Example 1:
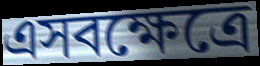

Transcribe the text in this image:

এসবক্ষেত্রে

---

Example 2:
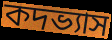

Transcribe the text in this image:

কদভ্যাস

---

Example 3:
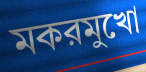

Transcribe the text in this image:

মকরমুখো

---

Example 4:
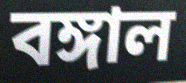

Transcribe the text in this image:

বঙ্গাল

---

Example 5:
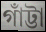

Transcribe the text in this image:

গাঁট্টা